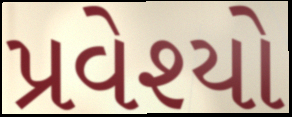
પ્રવેશ્યો